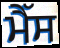
ਮੈੱਸ